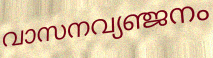
വാസനവ്യഞ്ജനം